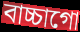
বাচ্চাগো